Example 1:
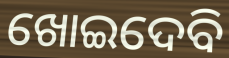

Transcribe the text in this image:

ଖୋଇଦେବି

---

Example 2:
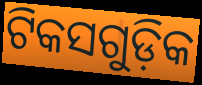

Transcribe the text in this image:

ଟିକସଗୁଡ଼ିକ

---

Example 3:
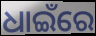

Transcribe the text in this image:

ଧାଇଁରେ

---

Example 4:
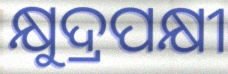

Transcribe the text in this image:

କ୍ଷୁଦ୍ରପକ୍ଷୀ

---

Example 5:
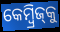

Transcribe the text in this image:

କେମ୍ୱ୍ରିଜ୍‌କୁ